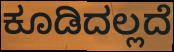
ಕೂಡಿದಲ್ಲದೆ